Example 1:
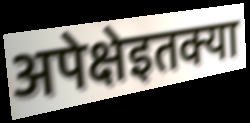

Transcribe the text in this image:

अपेक्षेइतक्या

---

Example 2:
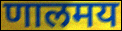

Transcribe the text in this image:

णालमय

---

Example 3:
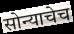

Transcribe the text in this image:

सोन्याचेच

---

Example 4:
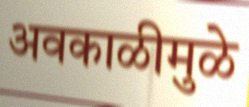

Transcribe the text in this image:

अवकाळीमुळे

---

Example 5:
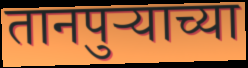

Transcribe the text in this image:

तानपुऱ्याच्या